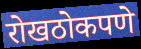
रोखठोकपणे